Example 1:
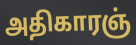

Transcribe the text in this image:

அதிகாரஞ்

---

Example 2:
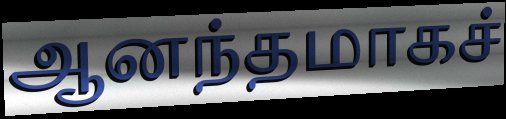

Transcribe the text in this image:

ஆனந்தமாகச்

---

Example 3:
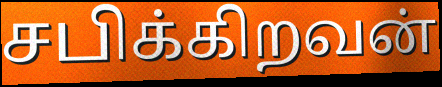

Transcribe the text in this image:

சபிக்கிறவன்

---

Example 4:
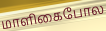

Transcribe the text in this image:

மாளிகைபோல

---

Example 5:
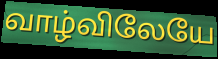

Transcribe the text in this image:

வாழ்விலேயே